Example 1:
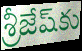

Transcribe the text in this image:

శ్రీజేష్‌కు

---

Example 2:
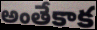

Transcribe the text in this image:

అంతేకాక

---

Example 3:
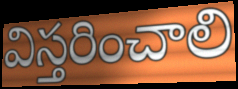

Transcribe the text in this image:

విస్తరించాలి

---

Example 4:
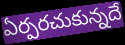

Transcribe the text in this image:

ఏర్పరచుకున్నదే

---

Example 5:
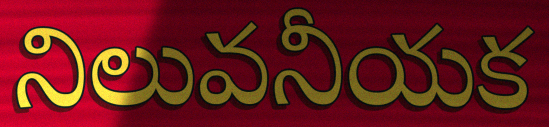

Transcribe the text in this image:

నిలువనీయక